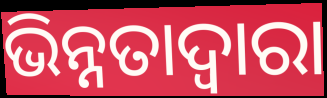
ଭିନ୍ନତାଦ୍ୱାରା